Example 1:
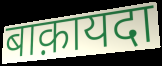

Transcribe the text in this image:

बाक़ायदा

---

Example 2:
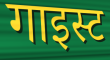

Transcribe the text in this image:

गाइस्ट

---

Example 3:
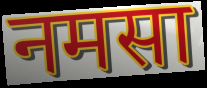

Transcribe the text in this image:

नमसा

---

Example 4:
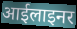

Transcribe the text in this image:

आईलाइनर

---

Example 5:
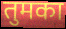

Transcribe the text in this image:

तुमका